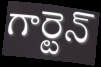
గార్టెన్